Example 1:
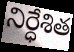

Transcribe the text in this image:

నిర్ధేశిత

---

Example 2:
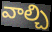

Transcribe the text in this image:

వాల్చి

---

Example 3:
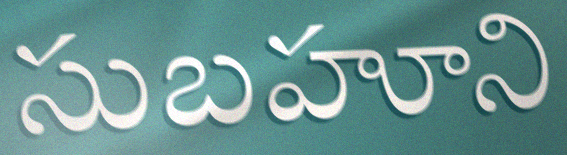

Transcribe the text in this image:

సుబహూని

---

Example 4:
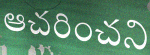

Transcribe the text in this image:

ఆచరించని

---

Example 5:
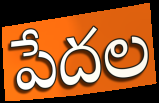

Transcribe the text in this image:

పేదల